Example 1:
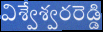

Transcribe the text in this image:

విశ్వేశ్వరరెడ్డి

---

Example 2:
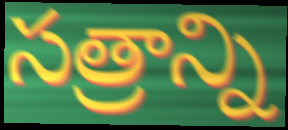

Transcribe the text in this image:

సత్రాన్ని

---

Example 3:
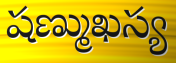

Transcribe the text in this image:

షణ్ముఖస్య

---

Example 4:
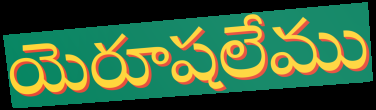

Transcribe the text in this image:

యెరూషలేము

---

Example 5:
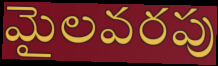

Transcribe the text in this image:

మైలవరపు